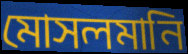
মোসলমানি